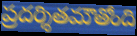
ప్రదర్శితమౌతోంది